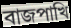
বাজপাখি